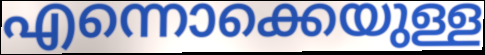
എന്നൊക്കെയുള്ള